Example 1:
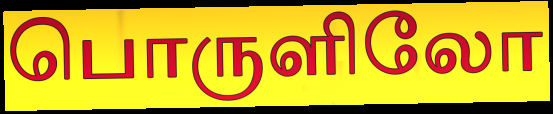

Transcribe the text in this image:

பொருளிலோ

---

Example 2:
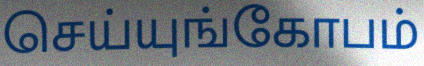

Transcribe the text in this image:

செய்யுங்கோபம்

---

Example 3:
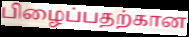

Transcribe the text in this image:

பிழைப்பதற்கான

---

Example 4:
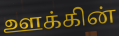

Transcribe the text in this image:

ஊக்கின்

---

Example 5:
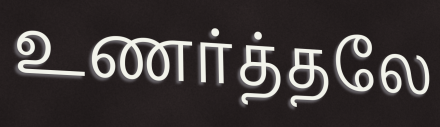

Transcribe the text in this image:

உணர்த்தலே